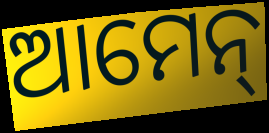
ଆମେନ୍